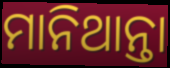
ମାନିଥାନ୍ତା